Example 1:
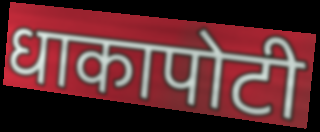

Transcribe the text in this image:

धाकापोटी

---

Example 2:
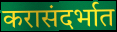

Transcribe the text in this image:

करासंदर्भात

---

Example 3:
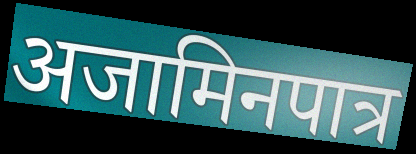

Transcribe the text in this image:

अजामिनपात्र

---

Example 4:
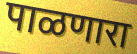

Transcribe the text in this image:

पाळणारा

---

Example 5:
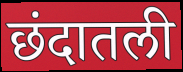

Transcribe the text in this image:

छंदातली